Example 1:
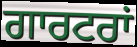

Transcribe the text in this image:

ਗਾਰਟਰਾਂ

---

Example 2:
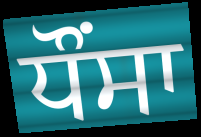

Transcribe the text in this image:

ਧੌਂਸਾ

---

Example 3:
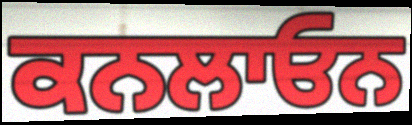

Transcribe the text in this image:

ਕਨਲਾਓਨ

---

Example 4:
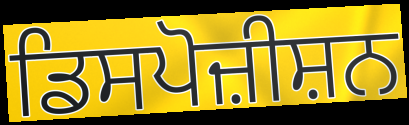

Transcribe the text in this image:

ਡਿਸਪੋਜ਼ੀਸ਼ਨ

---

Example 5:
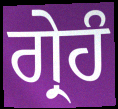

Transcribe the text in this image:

ਗ੍ਰੇਹੰ